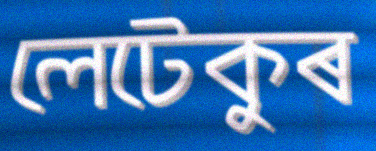
লেটেকুৰ